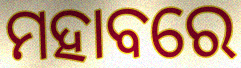
ମହାବରେ